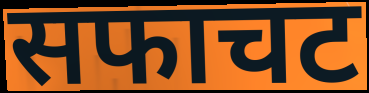
सफाचट